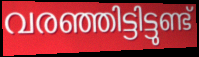
വരഞ്ഞിട്ടിട്ടുണ്ട്